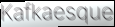
Kafkaesque